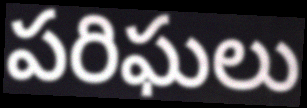
పరిఘలు